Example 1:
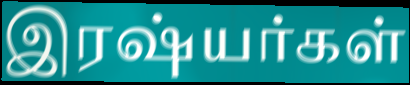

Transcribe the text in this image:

இரஷ்யர்கள்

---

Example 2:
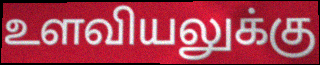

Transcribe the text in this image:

உளவியலுக்கு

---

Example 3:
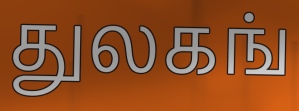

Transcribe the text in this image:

துலகங்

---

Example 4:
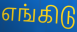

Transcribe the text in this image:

எங்கிடு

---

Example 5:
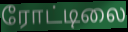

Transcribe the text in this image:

ரோட்டிலை